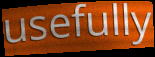
usefully